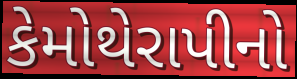
કેમોથેરાપીનો